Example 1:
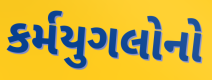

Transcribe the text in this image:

કર્મયુગલોનો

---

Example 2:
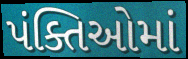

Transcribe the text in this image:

પંક્તિઓમાં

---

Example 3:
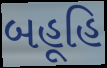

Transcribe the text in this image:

બહૂહિ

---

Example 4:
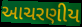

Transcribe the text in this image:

આચરણીય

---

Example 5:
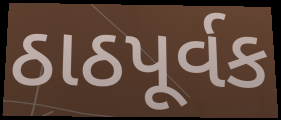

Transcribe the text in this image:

ઠાઠપૂર્વક